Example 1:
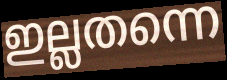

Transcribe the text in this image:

ഇല്ലതന്നെ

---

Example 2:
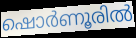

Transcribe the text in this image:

ഷൊർണൂരിൽ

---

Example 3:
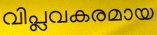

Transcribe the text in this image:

വിപ്ലവകരമായ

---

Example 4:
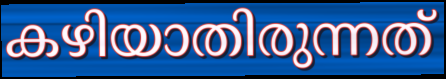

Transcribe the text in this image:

കഴിയാതിരുന്നത്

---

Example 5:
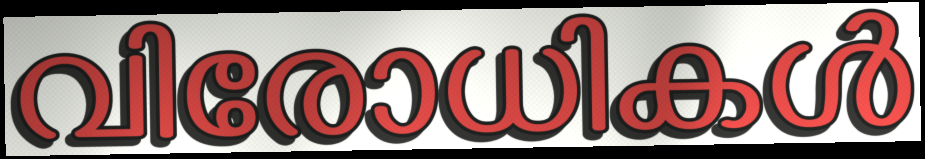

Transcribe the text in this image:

വിരോധികൾ